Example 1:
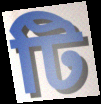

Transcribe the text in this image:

টি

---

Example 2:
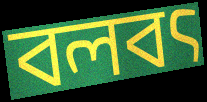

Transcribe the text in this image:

বলবৎ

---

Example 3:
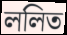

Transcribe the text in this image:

ললিত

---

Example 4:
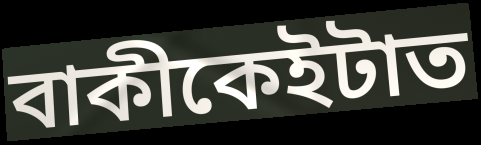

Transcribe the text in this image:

বাকীকেইটাত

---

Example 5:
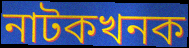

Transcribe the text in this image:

নাটকখনক